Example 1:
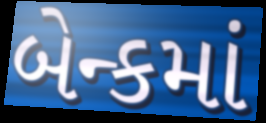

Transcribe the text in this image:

બેન્કમાં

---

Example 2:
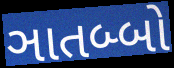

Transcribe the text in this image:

ઞાતબ્બો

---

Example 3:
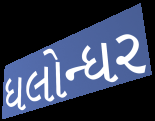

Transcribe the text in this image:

ધલોન્ધર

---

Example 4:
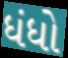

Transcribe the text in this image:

ધંધો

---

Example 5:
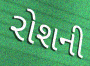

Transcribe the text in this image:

રોશની